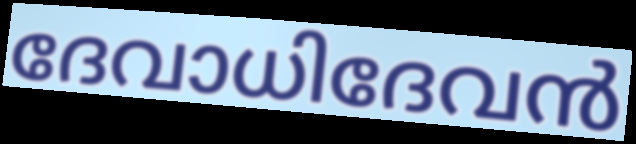
ദേവാധിദേവൻ